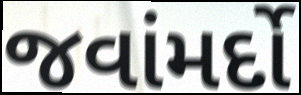
જવાંમર્દો